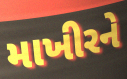
માખીરને